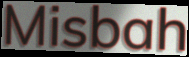
Misbah